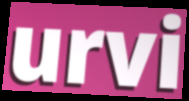
urvi